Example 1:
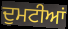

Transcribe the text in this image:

ਦੁਮਟੀਆਂ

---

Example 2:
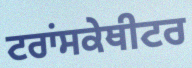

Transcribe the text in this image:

ਟਰਾਂਸਕੇਥੀਟਰ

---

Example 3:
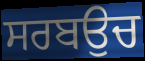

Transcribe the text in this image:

ਸਰਬਉਚ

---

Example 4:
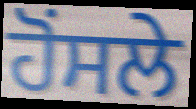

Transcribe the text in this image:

ਹੋਂਸਲੇ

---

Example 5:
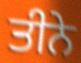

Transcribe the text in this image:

ਤੀਨੇ